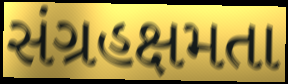
સંગ્રહક્ષમતા